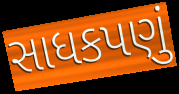
સાધકપણું